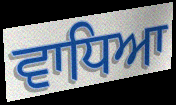
ਵਾਧਿਆ